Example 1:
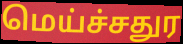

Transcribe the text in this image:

மெய்ச்சதுர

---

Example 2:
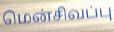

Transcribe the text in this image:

மென்சிவப்பு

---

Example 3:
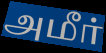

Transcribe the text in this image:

அமீர்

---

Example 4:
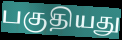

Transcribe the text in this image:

பகுதியது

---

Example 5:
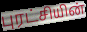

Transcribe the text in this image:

புரட்சியின்